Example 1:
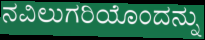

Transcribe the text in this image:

ನವಿಲುಗರಿಯೊಂದನ್ನು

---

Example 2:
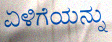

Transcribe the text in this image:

ಏಳಿಗೆಯನ್ನು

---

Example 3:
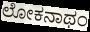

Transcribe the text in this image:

ಲೋಕನಾಥಂ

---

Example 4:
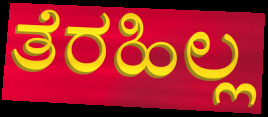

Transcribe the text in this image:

ತೆರಹಿಲ್ಲ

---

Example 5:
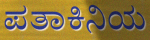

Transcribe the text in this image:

ಪತಾಕಿನಿಯ